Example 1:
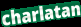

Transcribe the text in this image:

charlatan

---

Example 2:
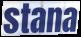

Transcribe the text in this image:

stana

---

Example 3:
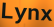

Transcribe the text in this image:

Lynx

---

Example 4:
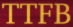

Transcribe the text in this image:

TTFB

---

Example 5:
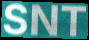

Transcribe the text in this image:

SNT